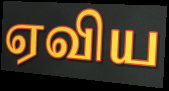
ஏவிய